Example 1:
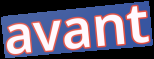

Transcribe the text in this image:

avant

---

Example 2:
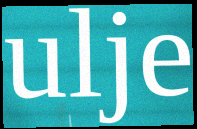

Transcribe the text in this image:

ulje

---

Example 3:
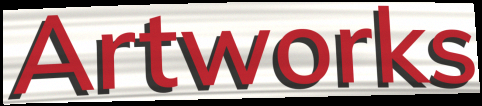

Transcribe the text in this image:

Artworks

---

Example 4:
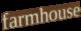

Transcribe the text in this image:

farmhouse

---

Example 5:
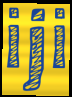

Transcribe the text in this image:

iji